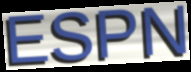
ESPN